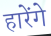
हारेंगे